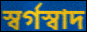
স্বর্গস্বাদ